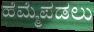
ಹೆಮ್ಮೆಪಡಲು